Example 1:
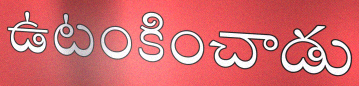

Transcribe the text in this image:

ఉటంకించాడు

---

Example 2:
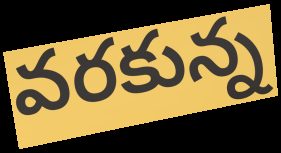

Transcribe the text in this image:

వరకున్న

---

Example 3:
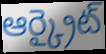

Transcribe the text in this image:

ఆర్క్రైట్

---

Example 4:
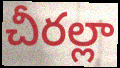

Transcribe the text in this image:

చీరల్లా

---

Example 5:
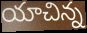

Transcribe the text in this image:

యాచిన్న